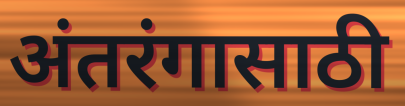
अंतरंगासाठी